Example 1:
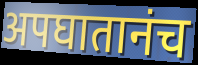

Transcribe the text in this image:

अपघातानंच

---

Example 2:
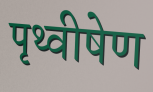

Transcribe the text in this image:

पृथ्वीषेण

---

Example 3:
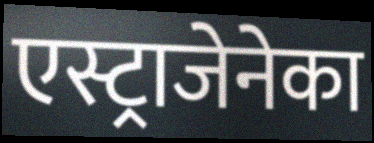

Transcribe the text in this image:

एस्ट्राजेनेका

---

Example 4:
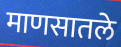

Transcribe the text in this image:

माणसातले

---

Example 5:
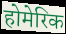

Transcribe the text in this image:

होमेरिक